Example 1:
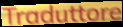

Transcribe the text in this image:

Traduttore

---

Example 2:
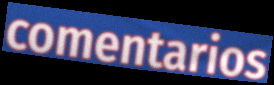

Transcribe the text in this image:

comentarios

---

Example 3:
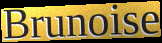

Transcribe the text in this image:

Brunoise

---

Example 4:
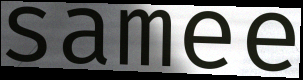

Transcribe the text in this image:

samee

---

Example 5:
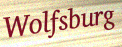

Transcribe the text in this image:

Wolfsburg